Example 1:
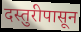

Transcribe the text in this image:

दस्तुरीपासून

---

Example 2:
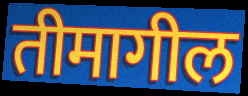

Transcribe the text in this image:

तीमागील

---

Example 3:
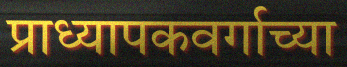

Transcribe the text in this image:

प्राध्यापकवर्गाच्या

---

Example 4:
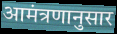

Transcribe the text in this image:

आमंत्रणानुसार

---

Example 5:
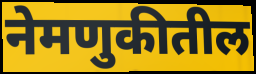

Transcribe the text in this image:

नेमणुकीतील